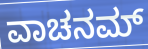
ವಾಚನಮ್